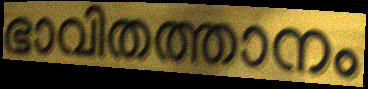
ഭാവിതത്താനം